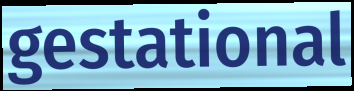
gestational